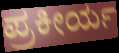
ಪ್ರಕೀರ್ಯ